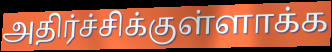
அதிர்ச்சிக்குள்ளாக்க